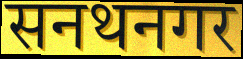
सनथनगर